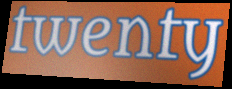
twenty